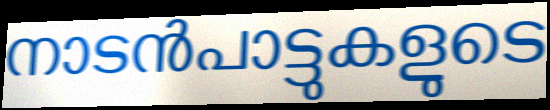
നാടൻപാട്ടുകളുടെ